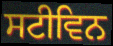
ਸਟੀਵਿਨ